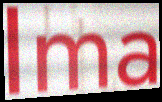
Ima